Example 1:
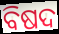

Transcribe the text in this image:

ବିଷଦ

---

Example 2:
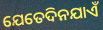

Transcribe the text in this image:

ଯେତେଦିନଯାଏଁ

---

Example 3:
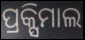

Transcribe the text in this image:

ପ୍ରକ୍ସିମାଲ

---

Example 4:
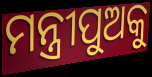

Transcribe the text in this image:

ମନ୍ତ୍ରୀପୁଅକୁ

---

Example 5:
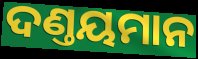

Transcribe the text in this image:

ଦଣ୍ତୟମାନ